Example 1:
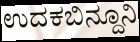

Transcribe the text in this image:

ಉದಕಬಿನ್ದೂನಿ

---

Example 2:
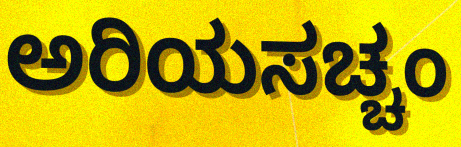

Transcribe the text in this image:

ಅರಿಯಸಚ್ಚಂ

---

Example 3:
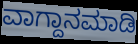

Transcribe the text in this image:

ವಾಗ್ದಾನಮಾಡಿ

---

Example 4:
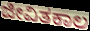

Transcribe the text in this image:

ಜೀವಿತಕಾಲ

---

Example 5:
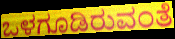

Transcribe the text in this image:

ಒಳಗೂಡಿರುವಂತೆ